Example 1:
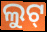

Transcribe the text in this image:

ଲୁଟ୍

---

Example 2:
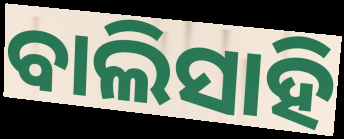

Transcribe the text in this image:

ବାଲିସାହି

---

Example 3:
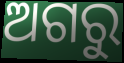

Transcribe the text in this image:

ଅଗରୁ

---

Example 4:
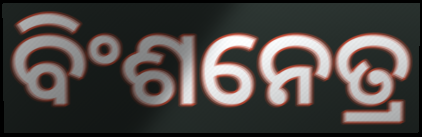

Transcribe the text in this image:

ବିଂଶନେତ୍ର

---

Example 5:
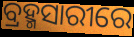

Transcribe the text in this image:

ବ୍ରହ୍ମସାରୀରେ